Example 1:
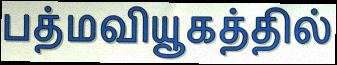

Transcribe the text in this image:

பத்மவியூகத்தில்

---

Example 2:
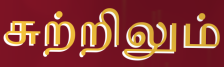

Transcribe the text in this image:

சுற்றிலும்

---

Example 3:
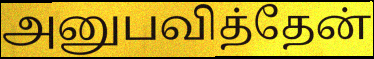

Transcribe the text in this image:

அனுபவித்தேன்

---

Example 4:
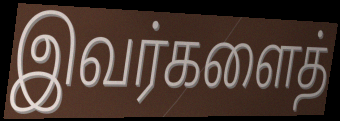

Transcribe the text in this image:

இவர்களைத்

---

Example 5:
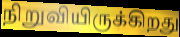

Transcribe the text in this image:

நிறுவியிருக்கிறது